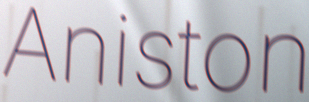
Aniston